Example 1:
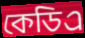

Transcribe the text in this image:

কেডিএ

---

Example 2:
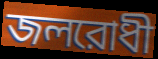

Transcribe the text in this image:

জলরোধী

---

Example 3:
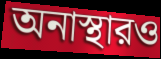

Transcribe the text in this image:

অনাস্থারও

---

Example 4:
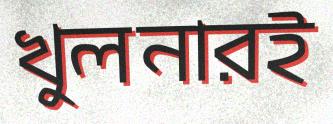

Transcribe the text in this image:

খুলনারই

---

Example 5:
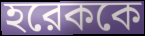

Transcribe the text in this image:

হরেককে